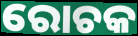
ରୋଚକ